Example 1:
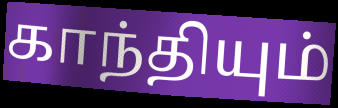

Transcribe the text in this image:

காந்தியும்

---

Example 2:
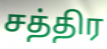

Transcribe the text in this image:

சத்திர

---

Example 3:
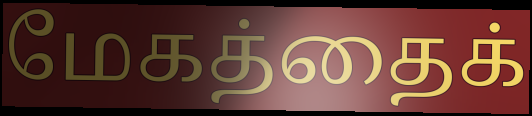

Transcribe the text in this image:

மேகத்தைக்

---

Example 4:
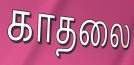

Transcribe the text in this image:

காதலை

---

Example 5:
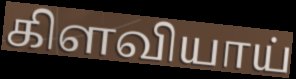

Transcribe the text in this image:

கிளவியாய்